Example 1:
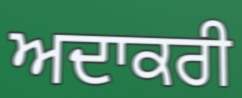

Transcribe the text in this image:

ਅਦਾਕਰੀ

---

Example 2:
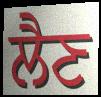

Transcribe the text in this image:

ਲੈਣ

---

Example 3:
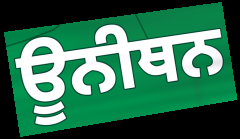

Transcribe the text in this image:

ਊਨੀਥਨ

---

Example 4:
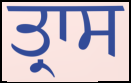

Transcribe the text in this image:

ਤ੍ਰਾਸ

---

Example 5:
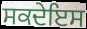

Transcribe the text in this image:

ਸਕਦੇਇਸ